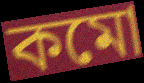
কমো